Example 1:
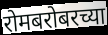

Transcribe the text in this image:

रोमबरोबरच्या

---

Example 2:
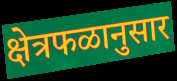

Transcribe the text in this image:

क्षेत्रफळानुसार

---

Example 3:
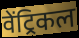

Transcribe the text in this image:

वेंट्रिकल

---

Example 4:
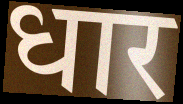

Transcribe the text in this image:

धार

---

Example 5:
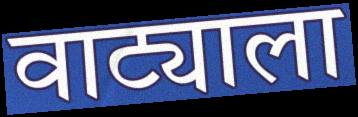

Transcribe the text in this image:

वाट्याला